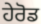
ਹੇਰੋਡ